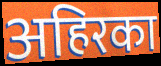
अहिरका